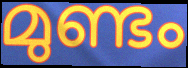
മുണ്ടം